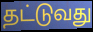
தட்டுவது